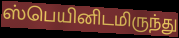
ஸ்பெயினிடமிருந்து